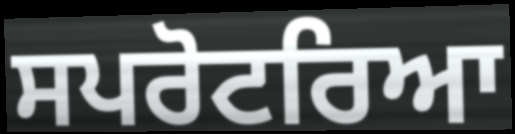
ਸਪਰੋਟਰਿਆ